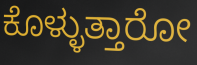
ಕೊಳ್ಳುತ್ತಾರೋ